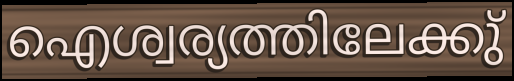
ഐശ്വര്യത്തിലേക്കു്